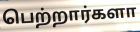
பெற்றார்களா